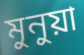
মুনুয়া